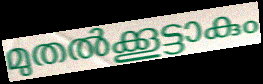
മുതൽക്കൂട്ടാകും